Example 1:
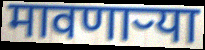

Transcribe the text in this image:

मावणाऱ्या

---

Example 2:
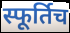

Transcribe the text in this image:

स्फूर्तिच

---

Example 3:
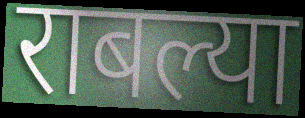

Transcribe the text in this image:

राबल्या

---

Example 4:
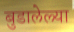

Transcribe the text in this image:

बुडालेल्या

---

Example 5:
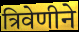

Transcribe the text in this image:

त्रिवेणीने